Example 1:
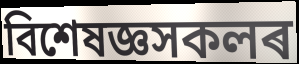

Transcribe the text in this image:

বিশেষজ্ঞসকলৰ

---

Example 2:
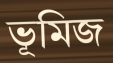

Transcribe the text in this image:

ভূমিজ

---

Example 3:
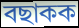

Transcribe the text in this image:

বছাকক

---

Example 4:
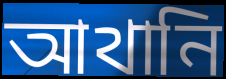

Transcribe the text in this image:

আথানি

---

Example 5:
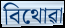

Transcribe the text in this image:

বিথোৱা